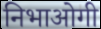
निभाओगी